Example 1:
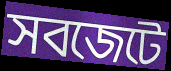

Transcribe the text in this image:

সবজেটে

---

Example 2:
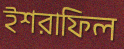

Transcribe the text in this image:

ইশরাফিল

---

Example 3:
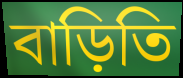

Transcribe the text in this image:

বাড়িতি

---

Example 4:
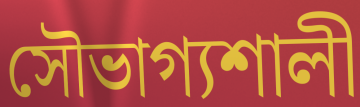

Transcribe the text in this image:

সৌভাগ্যশালী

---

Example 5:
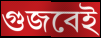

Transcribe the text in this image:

গুজবেই